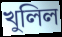
খুলিল